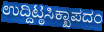
ಉದ್ದಿಟ್ಠಸಿಕ್ಖಾಪದಂ